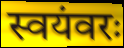
स्वयंवरः